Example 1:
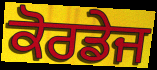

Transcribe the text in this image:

ਕੋਰਡੇਜ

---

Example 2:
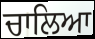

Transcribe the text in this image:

ਚਾਲਿਆ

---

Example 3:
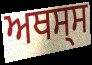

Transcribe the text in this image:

ਅਥਸ੍ਸ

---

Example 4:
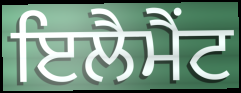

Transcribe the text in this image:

ਇਲੈਮੈਂਟ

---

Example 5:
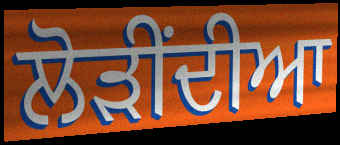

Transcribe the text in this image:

ਲੋੜੀਂਦੀਆ